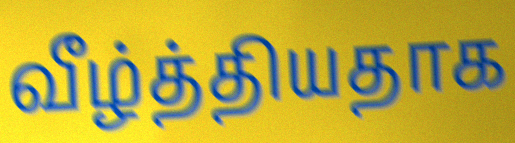
வீழ்த்தியதாக